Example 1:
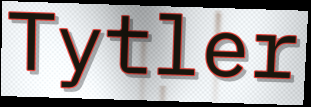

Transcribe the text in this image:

Tytler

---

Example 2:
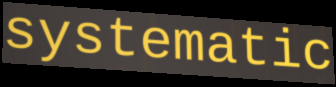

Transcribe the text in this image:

systematic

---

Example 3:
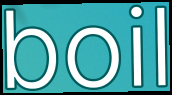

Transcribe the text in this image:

boil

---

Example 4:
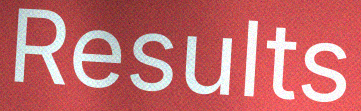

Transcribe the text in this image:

Results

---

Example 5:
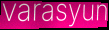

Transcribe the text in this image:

varasyun